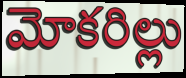
మోకరిల్లు